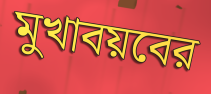
মুখাবয়বের